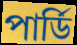
পার্ডি